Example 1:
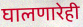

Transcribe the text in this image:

घालणारेही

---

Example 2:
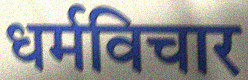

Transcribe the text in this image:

धर्मविचार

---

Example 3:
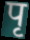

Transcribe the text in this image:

पृ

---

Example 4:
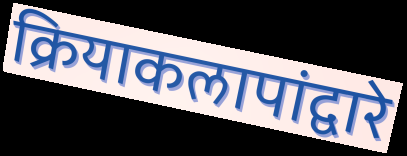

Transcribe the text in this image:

क्रियाकलापांद्वारे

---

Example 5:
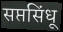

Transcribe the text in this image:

सप्तसिंधू